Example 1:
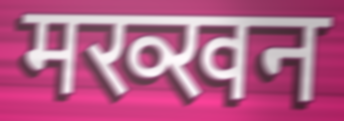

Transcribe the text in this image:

मख्खन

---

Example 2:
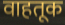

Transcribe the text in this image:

वाहतूक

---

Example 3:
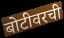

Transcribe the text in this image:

बोटीवरची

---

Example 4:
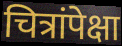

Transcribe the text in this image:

चित्रांपेक्षा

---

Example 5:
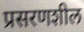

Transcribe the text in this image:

प्रसरणशील